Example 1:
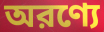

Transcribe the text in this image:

অরণ্যে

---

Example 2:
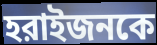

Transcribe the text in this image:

হরাইজনকে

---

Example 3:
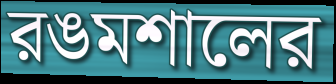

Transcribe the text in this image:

রঙমশালের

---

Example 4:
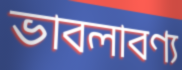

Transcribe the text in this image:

ভাবলাবণ্য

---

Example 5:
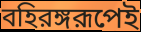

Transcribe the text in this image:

বহিরঙ্গরূপেই